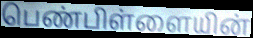
பெண்பிள்ளையின்